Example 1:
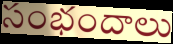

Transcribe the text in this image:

సంభందాలు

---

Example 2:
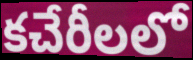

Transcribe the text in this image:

కచేరీలలో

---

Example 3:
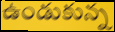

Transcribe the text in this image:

ఉండుకున్న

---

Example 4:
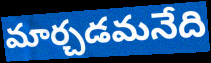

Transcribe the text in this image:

మార్చడమనేది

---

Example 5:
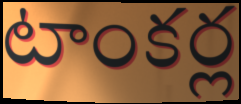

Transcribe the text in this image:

టాంకర్ల